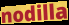
nodilla